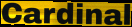
Cardinal